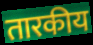
तारकीय